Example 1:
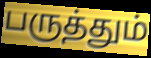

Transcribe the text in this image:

பருத்தும்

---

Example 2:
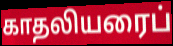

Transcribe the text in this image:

காதலியரைப்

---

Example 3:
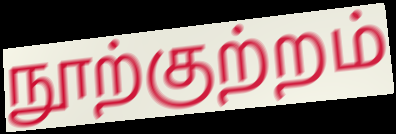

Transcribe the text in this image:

நூற்குற்றம்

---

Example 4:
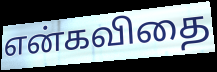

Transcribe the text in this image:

என்கவிதை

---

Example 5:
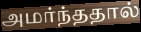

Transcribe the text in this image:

அமர்ந்ததால்